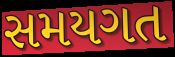
સમયગત